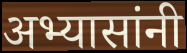
अभ्यासांनी